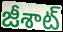
జీశాట్